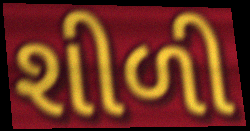
શીળી